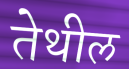
तेथील